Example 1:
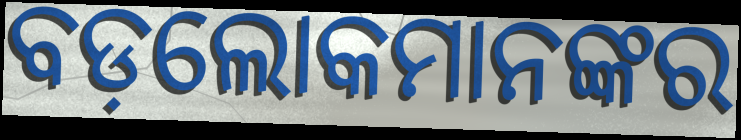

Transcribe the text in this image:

ବଡ଼ଲୋକମାନଙ୍କର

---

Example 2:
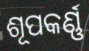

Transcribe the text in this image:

ଶୂପକର୍ଣ୍ଣ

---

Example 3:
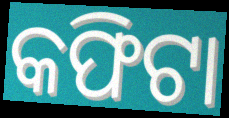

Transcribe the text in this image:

କଫିଟା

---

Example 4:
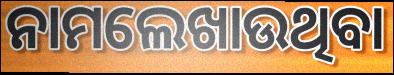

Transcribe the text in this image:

ନାମଲେଖାଉଥିବା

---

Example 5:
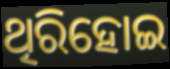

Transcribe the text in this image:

ଥିରିହୋଇ